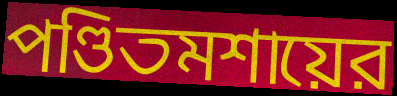
পণ্ডিতমশায়ের